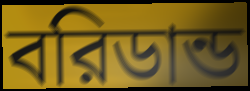
বরিডান্ড